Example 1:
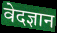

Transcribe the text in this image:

वेदज्ञान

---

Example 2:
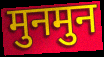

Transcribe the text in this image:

मुनमुन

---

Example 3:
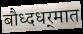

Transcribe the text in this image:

बौध्दधर्मात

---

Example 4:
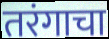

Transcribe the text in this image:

तरंगाचा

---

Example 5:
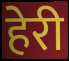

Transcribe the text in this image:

हेरी